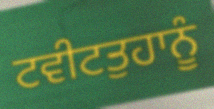
ਟਵੀਟਤੁਹਾਨੂੰ